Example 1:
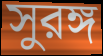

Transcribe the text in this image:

সুরঙ্গ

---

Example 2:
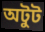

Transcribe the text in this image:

অটুট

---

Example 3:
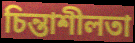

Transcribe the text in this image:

চিন্তাশীলতা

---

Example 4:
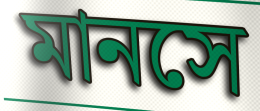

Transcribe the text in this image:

মানসে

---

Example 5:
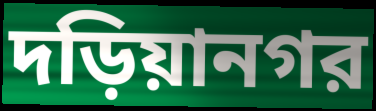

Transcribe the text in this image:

দড়িয়ানগর